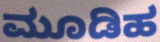
ಮೂಡಿಹ